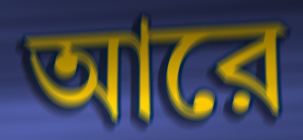
আরে